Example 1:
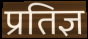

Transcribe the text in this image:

प्रतिज्ञ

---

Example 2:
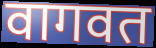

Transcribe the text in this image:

वागवत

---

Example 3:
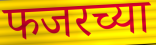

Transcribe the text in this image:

फजरच्या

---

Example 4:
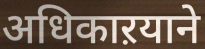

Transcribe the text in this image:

अधिकाऱयाने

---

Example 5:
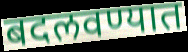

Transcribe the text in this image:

बदलवण्यात